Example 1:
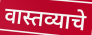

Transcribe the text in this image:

वास्तव्याचे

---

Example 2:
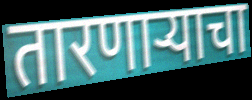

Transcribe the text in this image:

तारणाऱ्याचा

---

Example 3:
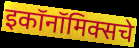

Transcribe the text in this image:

इकॉनॉमिक्सचे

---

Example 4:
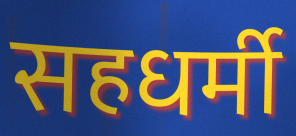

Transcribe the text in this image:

सहधर्मी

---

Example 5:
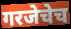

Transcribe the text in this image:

गरजेचेच